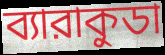
ব্যারাকুডা